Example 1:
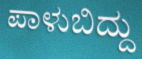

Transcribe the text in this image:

ಪಾಳುಬಿದ್ದು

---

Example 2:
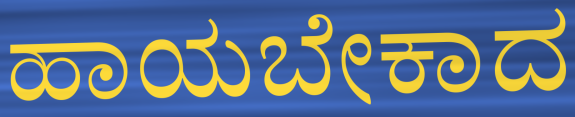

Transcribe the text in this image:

ಹಾಯಬೇಕಾದ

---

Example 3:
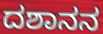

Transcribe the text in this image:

ದಶಾನನ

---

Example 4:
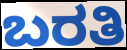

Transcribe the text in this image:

ಬರತಿ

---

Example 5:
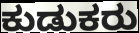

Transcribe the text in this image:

ಕುಡುಕರು